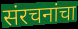
संरचनांचा